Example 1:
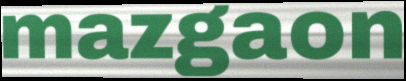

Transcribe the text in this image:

mazgaon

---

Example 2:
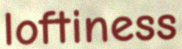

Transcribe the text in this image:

loftiness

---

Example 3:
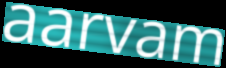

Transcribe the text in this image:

aarvam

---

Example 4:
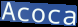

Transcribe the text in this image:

Acoca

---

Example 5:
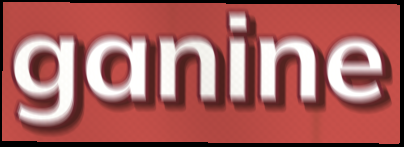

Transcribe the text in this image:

ganine